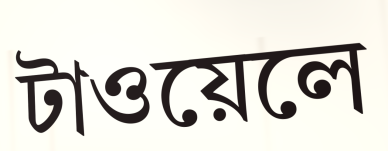
টাওয়েলে